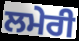
ਲਮੇਰੀ